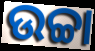
ଉଚ୍ଚା